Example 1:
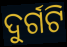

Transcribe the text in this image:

ଦୁର୍ଗଟି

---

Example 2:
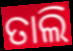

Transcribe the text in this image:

ତାଲି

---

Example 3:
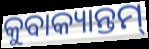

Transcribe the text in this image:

କୁବାକ୍ୟାନ୍ତମ୍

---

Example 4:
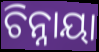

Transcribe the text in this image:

ଚିନ୍ନାୟା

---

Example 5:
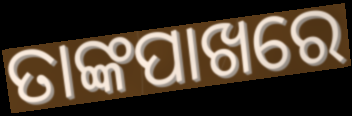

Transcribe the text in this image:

ତାଙ୍କପାଖରେ